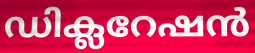
ഡിക്ലറേഷൻ